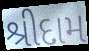
શ્રીદામ